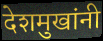
देशमुखांनी